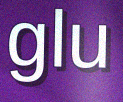
glu